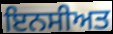
ਇਨਸੀਅਤ